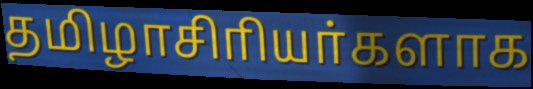
தமிழாசிரியர்களாக